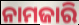
ନାମଜାରି